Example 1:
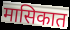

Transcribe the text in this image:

मासिकात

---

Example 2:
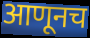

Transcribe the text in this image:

आणूनच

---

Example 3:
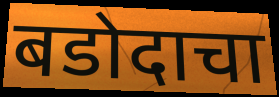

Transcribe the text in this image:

बडोदाचा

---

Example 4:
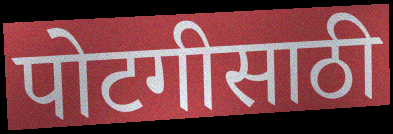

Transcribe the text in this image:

पोटगीसाठी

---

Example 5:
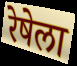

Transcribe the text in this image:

रेषेला